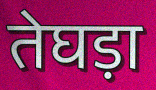
तेघड़ा